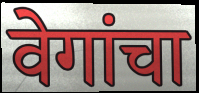
वेगांचा